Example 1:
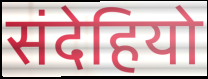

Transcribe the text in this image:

संदेहियो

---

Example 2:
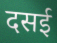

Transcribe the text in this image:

दसई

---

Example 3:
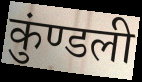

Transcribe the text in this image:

कुंण्डली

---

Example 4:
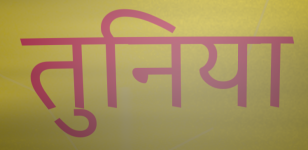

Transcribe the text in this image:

तुनिया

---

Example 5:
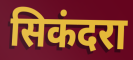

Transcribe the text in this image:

सिकंदरा